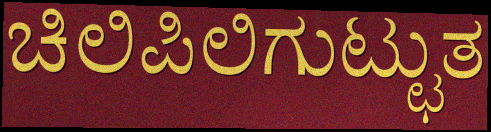
ಚಿಲಿಪಿಲಿಗುಟ್ಟುತ